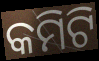
କମିଟି